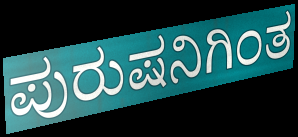
ಪುರುಷನಿಗಿಂತ